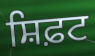
ਸ਼ਿਫ਼ਟ